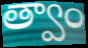
త్వాం